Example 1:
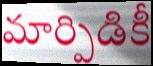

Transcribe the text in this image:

మార్పిడికీ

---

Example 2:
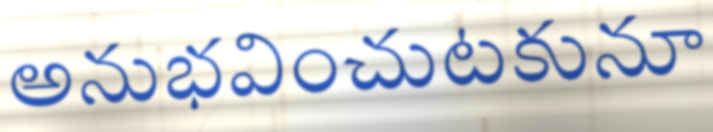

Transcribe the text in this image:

అనుభవించుటకునూ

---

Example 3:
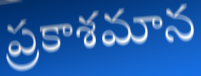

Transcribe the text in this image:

ప్రకాశమాన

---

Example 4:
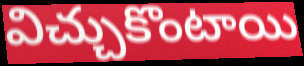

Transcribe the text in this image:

విచ్చుకొంటాయి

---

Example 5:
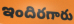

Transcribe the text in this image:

ఇందిరగారు